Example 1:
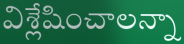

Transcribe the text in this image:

విశ్లేషించాలన్నా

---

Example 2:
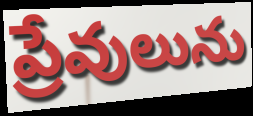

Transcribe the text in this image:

ప్రేవులును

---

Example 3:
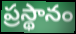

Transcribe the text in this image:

ప్రస్థానం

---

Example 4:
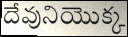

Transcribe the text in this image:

దేవునియొక్క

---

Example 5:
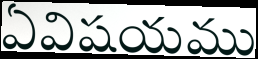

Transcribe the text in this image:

ఏవిషయము